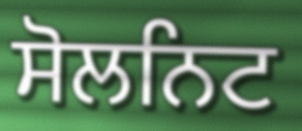
ਸੋਲਨਿਟ